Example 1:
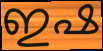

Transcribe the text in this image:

ഇഷ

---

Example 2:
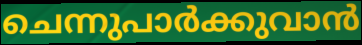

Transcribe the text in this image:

ചെന്നുപാർക്കുവാൻ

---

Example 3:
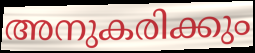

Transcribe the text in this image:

അനുകരിക്കും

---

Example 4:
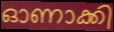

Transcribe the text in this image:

ഓണാക്കി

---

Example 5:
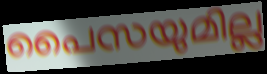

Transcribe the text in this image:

പൈസയുമില്ല